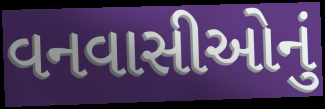
વનવાસીઓનું